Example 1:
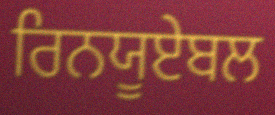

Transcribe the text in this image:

ਰਿਨਯੂਏਬਲ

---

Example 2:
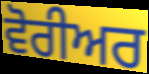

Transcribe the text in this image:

ਵੋਰੀਅਰ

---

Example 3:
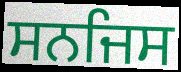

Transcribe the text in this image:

ਸਨਜਿਸ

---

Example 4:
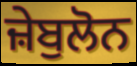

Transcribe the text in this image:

ਜ਼ੇਬੁਲੋਨ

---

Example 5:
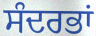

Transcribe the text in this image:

ਸੰਦਰਭਾਂ